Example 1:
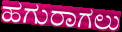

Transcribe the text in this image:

ಹಗುರಾಗಲು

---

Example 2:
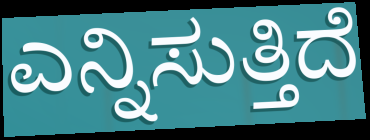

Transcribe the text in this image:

ಎನ್ನಿಸುತ್ತಿದೆ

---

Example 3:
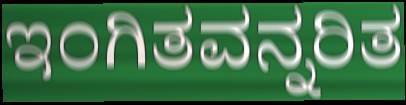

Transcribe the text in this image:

ಇಂಗಿತವನ್ನರಿತ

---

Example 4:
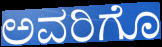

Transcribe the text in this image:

ಅವರಿಗೊ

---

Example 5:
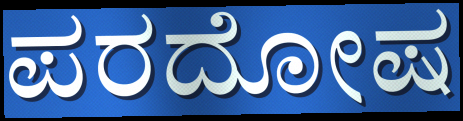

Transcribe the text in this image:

ಪರದೋಷ